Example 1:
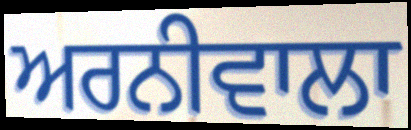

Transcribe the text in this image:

ਅਰਨੀਵਾਲਾ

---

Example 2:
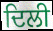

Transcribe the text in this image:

ਦਿਲੀ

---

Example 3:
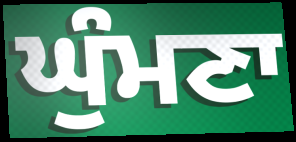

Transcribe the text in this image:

ਘੁੰਮਣਾ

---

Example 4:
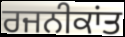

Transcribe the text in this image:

ਰਜਨੀਕਾਂਤ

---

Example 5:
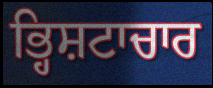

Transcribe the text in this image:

ਭ੍ਹਿਸ਼ਟਾਚਾਰ